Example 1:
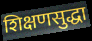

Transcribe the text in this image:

शिक्षणसुद्धा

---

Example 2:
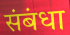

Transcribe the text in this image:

संबंधा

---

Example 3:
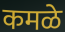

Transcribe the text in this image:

कमळे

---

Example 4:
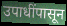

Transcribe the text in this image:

उपाधींपासून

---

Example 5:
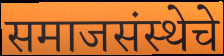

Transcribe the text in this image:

समाजसंस्थेचे